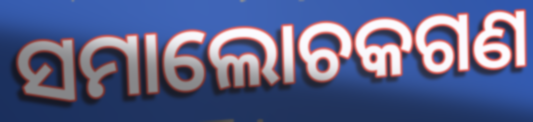
ସମାଲୋଚକଗଣ